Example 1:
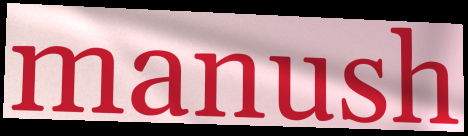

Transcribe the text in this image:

manush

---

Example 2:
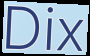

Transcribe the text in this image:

Dix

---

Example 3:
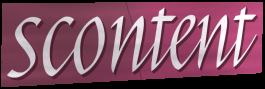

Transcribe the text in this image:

scontent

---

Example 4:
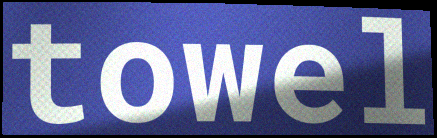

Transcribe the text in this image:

towel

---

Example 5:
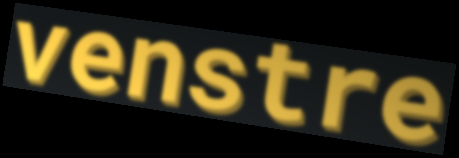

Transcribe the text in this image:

venstre